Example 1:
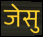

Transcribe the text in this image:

जेसु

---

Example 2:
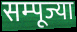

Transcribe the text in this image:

सम्पूज्या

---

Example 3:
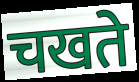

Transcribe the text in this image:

चखते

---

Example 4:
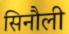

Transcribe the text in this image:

सिनौली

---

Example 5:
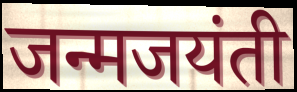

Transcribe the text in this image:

जन्मजयंती